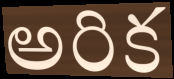
అరిక